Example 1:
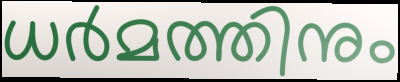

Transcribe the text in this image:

ധർമത്തിനും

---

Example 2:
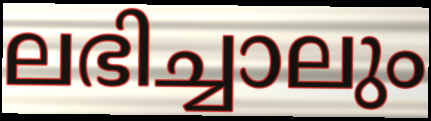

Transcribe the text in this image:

ലഭിച്ചാലും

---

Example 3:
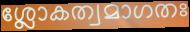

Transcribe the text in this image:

ശ്ലോകത്വമാഗതഃ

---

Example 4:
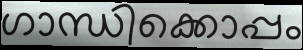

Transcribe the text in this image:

ഗാന്ധിക്കൊപ്പം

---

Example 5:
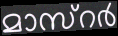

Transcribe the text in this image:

മാസ്റർ